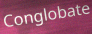
Conglobate